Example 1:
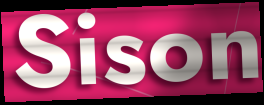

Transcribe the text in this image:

Sison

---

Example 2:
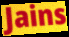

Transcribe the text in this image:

Jains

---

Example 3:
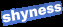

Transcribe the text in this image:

shyness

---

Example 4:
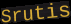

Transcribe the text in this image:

Srutis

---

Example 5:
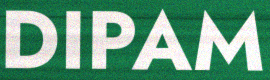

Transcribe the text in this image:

DIPAM